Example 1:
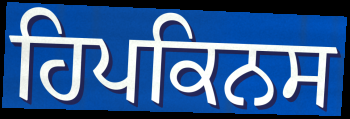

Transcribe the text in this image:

ਹਿਪਕਿਨਸ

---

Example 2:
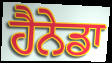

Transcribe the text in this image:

ਹੈਨੇਡਾ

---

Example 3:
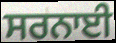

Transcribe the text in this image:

ਸਰਨਾਈ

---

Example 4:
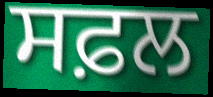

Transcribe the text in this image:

ਸਫ਼ਲ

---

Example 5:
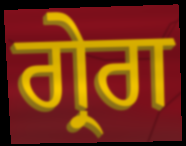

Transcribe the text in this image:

ਗ੍ਰੇਗ